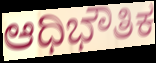
ಆಧಿಭೌತಿಕ